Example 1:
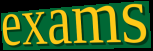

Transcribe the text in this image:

exams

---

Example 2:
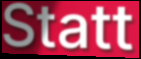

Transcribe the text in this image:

Statt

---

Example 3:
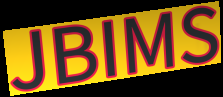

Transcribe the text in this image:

JBIMS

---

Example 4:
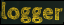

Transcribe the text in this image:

logger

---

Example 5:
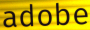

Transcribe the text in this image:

adobe